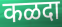
कळदा